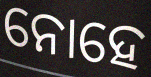
ନୋହେ